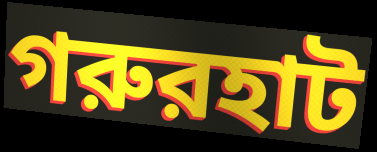
গরুরহাট